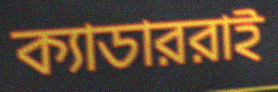
ক্যাডাররাই